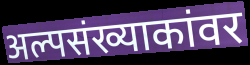
अल्पसंख्याकांवर